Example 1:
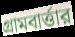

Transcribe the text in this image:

গ্রামবার্ত্তার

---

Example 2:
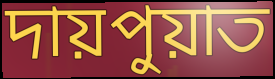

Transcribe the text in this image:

দায়পুয়াত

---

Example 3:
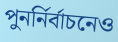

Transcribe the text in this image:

পুনর্নির্বাচনেও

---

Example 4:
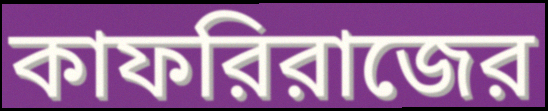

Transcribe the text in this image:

কাফরিরাজের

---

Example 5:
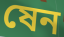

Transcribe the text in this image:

ষেন